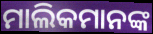
ମାଲିକମାନଙ୍କ